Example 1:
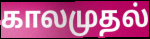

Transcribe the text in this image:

காலமுதல்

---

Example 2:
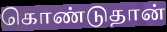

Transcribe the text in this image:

கொண்டுதான்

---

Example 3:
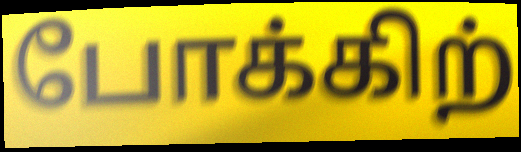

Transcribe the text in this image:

போக்கிற்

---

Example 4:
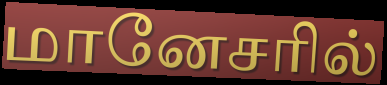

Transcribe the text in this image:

மானேசரில்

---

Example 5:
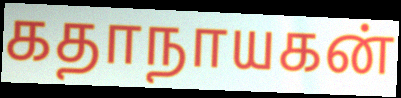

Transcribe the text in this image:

கதாநாயகன்